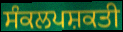
ਸੰਕਲਪਸ਼ਕਤੀ